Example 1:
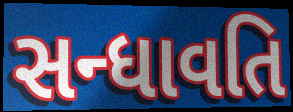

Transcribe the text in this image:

સન્ધાવતિ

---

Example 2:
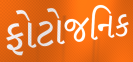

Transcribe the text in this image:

ફોટોજનિક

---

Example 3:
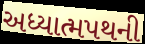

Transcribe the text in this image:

અધ્યાત્મપથની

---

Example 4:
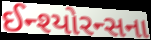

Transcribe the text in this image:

ઈન્શ્યોરન્સના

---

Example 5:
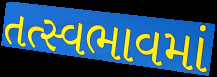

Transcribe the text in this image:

તત્સ્વભાવમાં